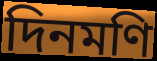
দিনমণি